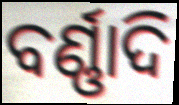
ବର୍ଣ୍ଣାଦି